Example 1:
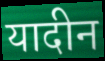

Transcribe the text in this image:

यादीन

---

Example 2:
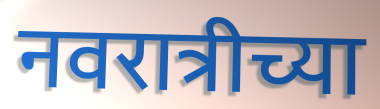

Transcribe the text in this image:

नवरात्रीच्या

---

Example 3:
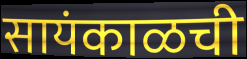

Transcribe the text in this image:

सायंकाळची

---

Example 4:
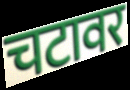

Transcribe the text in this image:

चटावर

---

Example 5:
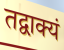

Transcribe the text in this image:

तद्वाक्यं